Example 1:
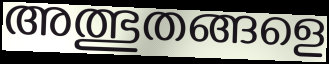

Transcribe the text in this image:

അത്ഭുതങ്ങളെ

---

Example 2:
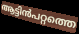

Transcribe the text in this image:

ആട്ടിൻപറ്റത്തെ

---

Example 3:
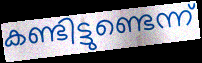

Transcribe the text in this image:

കണ്ടിട്ടുണ്ടെന്ന്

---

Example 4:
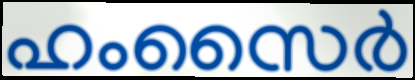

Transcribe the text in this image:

ഹംസൈർ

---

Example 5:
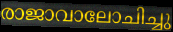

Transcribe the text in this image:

രാജാവാലോചിച്ചു